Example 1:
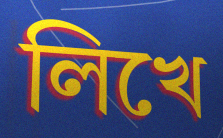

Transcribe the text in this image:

লিখে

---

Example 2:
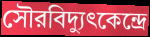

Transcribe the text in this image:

সৌরবিদ্যুৎকেন্দ্রে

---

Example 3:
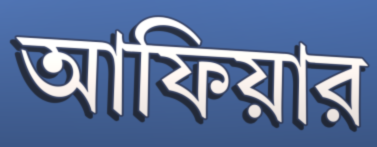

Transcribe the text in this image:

আফিয়ার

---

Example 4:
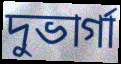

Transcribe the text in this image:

দুভার্গা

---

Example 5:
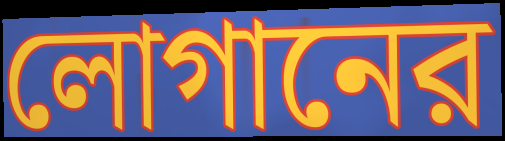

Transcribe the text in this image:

লোগানের